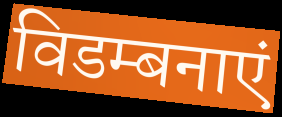
विडम्बनाएं